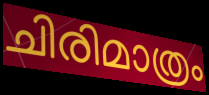
ചിരിമാത്രം